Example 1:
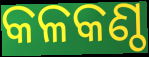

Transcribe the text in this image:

କଳକଣ୍ଠ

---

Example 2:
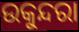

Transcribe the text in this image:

ଉକୁନ୍ଦରା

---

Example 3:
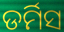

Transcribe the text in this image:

ଡର୍ମିସ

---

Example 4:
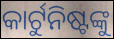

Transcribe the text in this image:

କାର୍ଟୁନିଷ୍ଟଙ୍କୁ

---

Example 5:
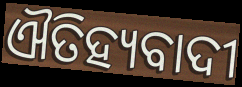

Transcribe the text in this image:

ଐତିହ୍ୟବାଦୀ